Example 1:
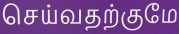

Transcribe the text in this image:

செய்வதற்குமே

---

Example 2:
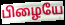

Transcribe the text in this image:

பிழையே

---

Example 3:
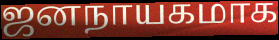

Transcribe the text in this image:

ஜனநாயகமாக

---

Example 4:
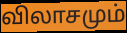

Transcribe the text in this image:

விலாசமும்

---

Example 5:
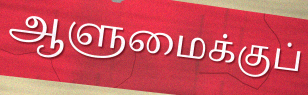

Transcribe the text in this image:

ஆளுமைக்குப்